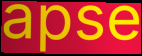
apse